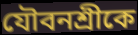
যৌবনশ্রীকে